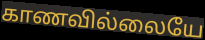
காணவில்லையே